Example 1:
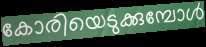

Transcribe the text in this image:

കോരിയെടുക്കുമ്പോൾ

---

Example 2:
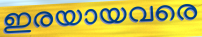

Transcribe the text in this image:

ഇരയായവരെ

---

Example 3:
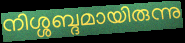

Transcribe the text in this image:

നിശ്ശബ്ദമായിരുന്നു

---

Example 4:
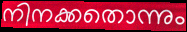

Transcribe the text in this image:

നിനക്കതൊന്നും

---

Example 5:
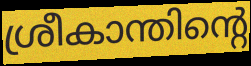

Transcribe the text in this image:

ശ്രീകാന്തിന്റെ